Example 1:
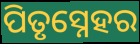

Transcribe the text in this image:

ପିତୃସ୍ନେହର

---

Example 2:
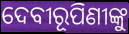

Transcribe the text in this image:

ଦେବୀରୂପିଣୀଙ୍କୁ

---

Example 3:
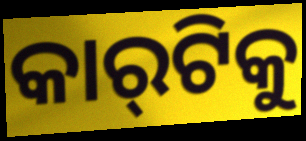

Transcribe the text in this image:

କାର୍‍ଟିକୁ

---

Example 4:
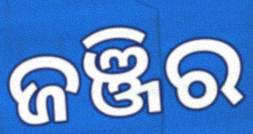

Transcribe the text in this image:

ଜଞ୍ଜିର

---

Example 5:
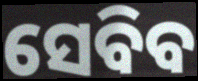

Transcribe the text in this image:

ସେବିବ